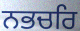
ਨਭਚਰਿ